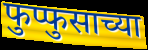
फुप्फुसाच्या